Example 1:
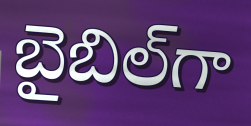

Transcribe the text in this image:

బైబిల్‌గా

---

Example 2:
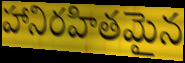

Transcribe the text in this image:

హానిరహితమైన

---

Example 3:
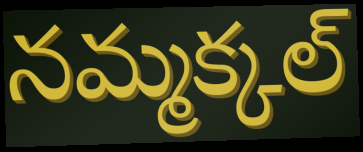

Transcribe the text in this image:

నమ్మక్కల్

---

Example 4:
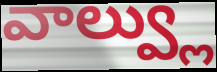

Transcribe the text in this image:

వాల్వ్లు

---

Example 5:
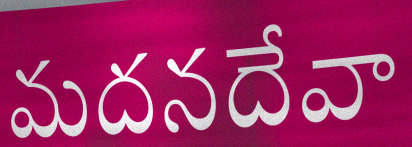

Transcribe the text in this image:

మదనదేవా